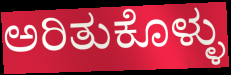
ಅರಿತುಕೊಳ್ಳು